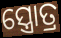
ସ୍ତ୍ରୋତ୍ର